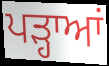
ਪੜ੍ਹਾਆਂ